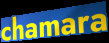
chamara